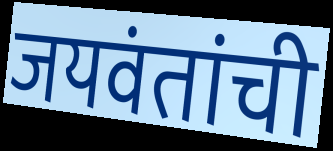
जयवंतांची